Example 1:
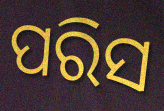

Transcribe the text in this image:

ପରିସ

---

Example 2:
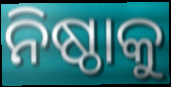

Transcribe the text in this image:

ନିଷ୍ଠାକୁ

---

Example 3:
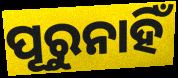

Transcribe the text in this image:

ପୂରୁନାହିଁ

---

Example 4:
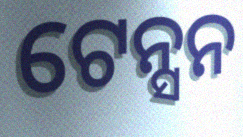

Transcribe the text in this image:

ଟେନ୍ସନ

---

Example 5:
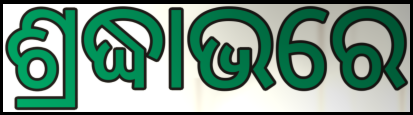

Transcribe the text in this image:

ଶ୍ରଦ୍ଧାଭରେ